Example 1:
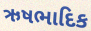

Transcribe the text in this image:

ઋષભાદિક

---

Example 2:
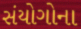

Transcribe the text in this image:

સંયોગોના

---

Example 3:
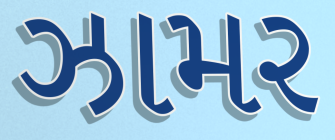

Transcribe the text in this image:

ઝામર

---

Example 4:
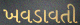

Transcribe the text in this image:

ખવડાવતી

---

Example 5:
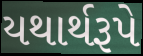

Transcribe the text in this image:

યથાર્થરૂપે